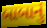
બાબાનું